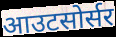
आउटसोर्सर